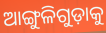
ଆଙ୍ଗୁଳିଗୁଡ଼ାକୁ